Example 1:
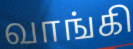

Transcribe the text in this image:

வாங்கி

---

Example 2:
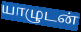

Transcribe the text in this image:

யாழுடன்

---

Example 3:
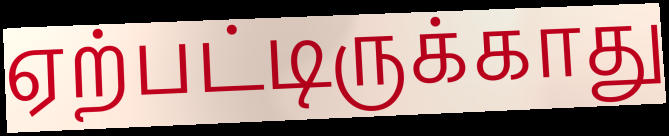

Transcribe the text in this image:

ஏற்பட்டிருக்காது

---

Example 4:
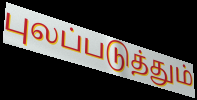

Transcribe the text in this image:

புலப்படுத்தும்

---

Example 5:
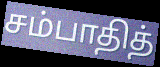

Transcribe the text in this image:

சம்பாதித்